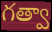
గత్వా